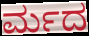
ರ್ಮದ